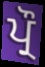
ਪ੍ਰੌ